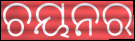
ଚୟନର